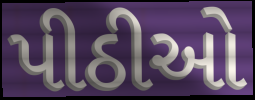
પીઠીઓ